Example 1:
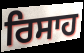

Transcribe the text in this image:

ਰਿਸਾਹ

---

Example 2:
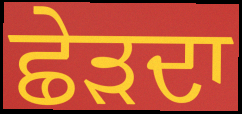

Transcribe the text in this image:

ਛੇੜਦਾ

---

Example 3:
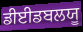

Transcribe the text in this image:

ਡੀਈਡਬਲਯੂ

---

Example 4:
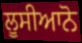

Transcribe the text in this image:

ਲੂਸੀਆਨੋ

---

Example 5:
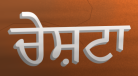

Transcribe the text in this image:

ਚੇਸ਼ਟਾ